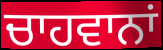
ਚਾਹਵਾਨਾਂ